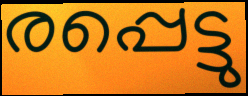
രപ്പെട്ടു